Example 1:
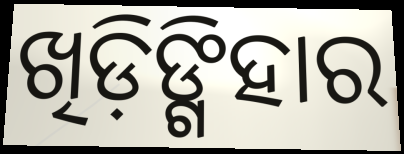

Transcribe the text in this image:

ଖିଡ଼ିଙ୍ଗିହାର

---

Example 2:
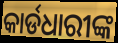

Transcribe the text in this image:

କାର୍ଡଧାରୀଙ୍କ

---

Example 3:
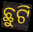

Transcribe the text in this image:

ଛୁଟି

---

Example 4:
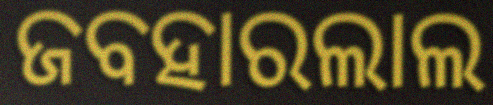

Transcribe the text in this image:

ଜବହାରଲାଲ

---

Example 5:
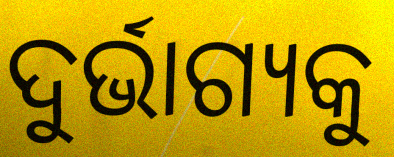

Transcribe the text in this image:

ଦୁର୍ଭାଗ୍ୟକୁ